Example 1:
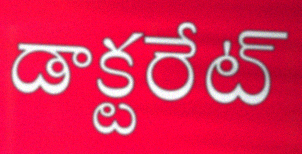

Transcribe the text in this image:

డాక్టరేట్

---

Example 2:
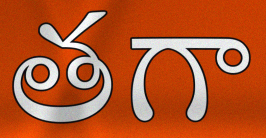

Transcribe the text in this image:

తగా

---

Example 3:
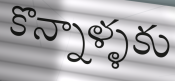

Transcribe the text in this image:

కొన్నాళ్ళకు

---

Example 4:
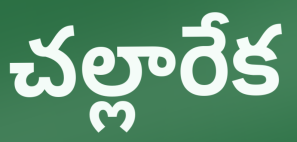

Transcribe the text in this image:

చల్లారేక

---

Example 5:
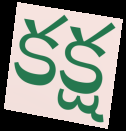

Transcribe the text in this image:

కక్ష